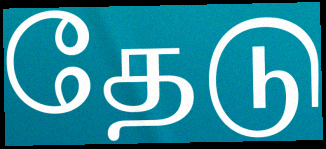
தேடு